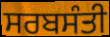
ਸਰਬਸੰਤੀ